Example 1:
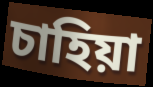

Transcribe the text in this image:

চাহিয়া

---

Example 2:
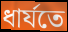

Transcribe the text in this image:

ধার্যতে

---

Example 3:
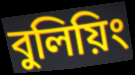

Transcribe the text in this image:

বুলিয়িং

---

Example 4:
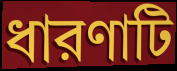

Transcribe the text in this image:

ধারণাটি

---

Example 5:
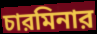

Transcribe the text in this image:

চারমিনার